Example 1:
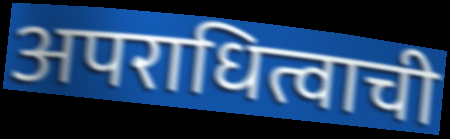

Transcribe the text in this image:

अपराधित्वाची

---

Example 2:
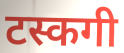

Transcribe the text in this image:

टस्कगी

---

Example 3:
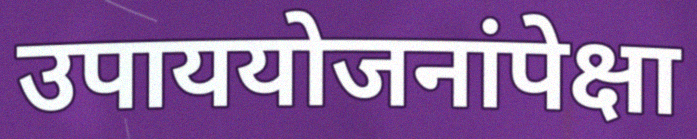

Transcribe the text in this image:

उपाययोजनांपेक्षा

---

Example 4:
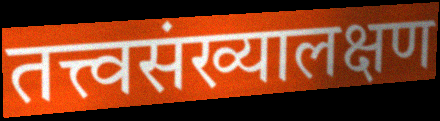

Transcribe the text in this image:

तत्त्वसंख्यालक्षण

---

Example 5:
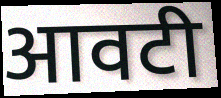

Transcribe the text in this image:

आवटी